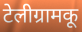
टेलीग्रामकू